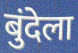
बुंदेला